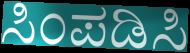
ಸಿಂಪಡಿಸಿ